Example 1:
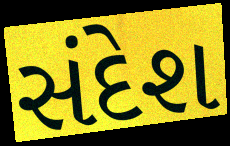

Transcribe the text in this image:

સંદેશ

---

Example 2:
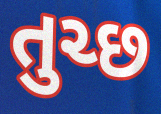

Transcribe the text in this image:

તુચ્છ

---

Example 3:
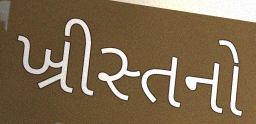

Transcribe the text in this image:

ખ્રીસ્તનો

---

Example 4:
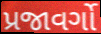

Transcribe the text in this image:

પ્રજાવર્ગો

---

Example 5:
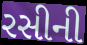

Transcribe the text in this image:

રસીની